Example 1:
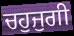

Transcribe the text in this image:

ਚਹੁਜੁਗੀ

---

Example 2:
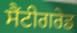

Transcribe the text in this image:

ਸੈਂਟੀਗਰੇਡ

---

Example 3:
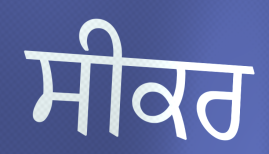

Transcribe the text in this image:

ਸੀਕਰ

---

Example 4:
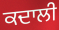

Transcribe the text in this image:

ਕਦਾਲੀ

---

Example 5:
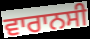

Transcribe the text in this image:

ਵਾਰਾਨਸੀ